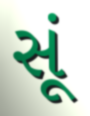
સૂં